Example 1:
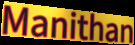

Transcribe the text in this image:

Manithan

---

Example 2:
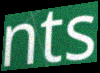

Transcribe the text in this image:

nts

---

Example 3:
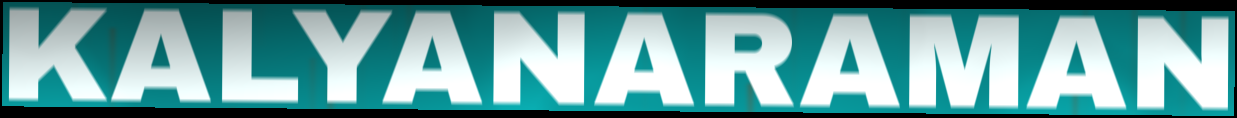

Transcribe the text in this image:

KALYANARAMAN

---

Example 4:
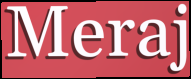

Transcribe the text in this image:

Meraj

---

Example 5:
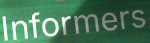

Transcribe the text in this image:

Informers